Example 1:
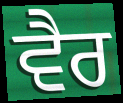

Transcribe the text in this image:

ਵੈਰ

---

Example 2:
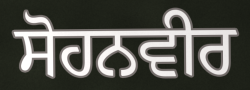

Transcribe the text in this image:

ਸੋਹਨਵੀਰ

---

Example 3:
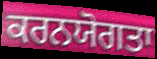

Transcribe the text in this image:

ਕਰਨਯੋਗਤਾ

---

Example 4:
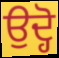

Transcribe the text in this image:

ਉਦ੍ਹੋ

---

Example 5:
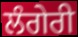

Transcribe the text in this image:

ਲੰਗੇਰੀ